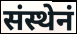
संस्थेनं